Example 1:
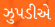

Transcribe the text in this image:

ઝુપડીએ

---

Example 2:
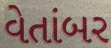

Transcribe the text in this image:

વેતાંબર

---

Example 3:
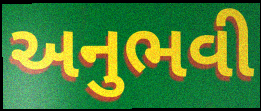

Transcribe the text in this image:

અનુભવી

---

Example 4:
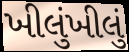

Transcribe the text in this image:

ખીલુંખીલું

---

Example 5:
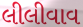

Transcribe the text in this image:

લીલીવાવ